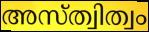
അസ്ത്വിത്വം